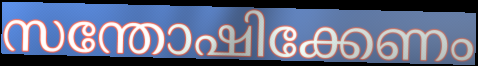
സന്തോഷിക്കേണം